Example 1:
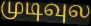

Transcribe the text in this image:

முடிவுல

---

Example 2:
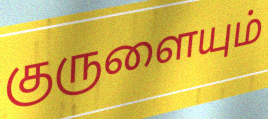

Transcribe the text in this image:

குருளையும்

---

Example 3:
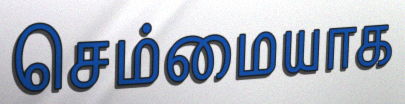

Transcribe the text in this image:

செம்மையாக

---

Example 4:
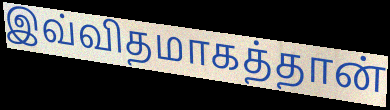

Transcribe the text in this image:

இவ்விதமாகத்தான்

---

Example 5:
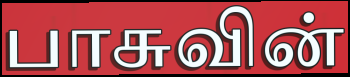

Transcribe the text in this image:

பாசுவின்